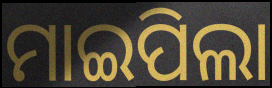
ମାଇପିଲା